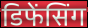
डिफेंसिंग